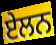
ਏਲਨ